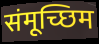
संमूच्छिम